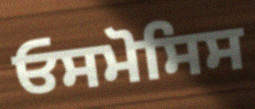
ਓਸਮੋਸਿਸ